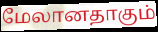
மேலானதாகும்